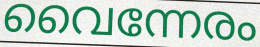
വൈന്നേരം